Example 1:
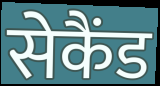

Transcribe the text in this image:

सेकैंड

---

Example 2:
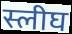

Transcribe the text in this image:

स्लीघ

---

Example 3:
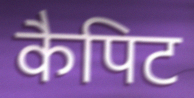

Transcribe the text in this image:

कैपिट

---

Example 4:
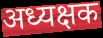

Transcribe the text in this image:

अध्यक्षक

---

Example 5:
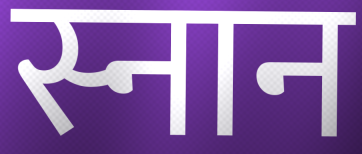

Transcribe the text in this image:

स्‍नान